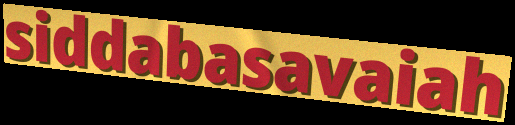
siddabasavaiah